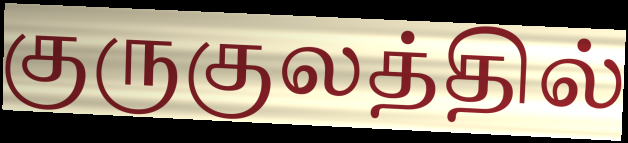
குருகுலத்தில்